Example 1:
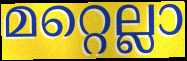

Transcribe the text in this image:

മറ്റെല്ലാ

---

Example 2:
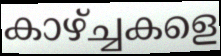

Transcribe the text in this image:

കാഴ്ച്ചകളെ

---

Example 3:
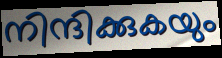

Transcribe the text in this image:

നിന്ദിക്കുകയും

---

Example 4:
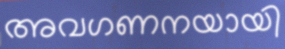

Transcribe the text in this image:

അവഗണനയായി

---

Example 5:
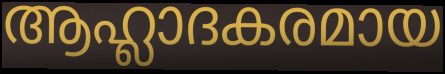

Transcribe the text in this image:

ആഹ്ലാദകരമായ